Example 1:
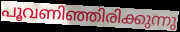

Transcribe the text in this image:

പൂവണിഞ്ഞിരിക്കുന്നു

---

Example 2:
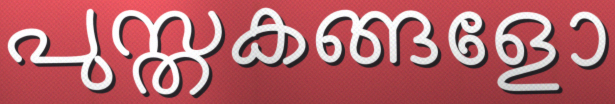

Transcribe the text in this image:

പുസ്തകങ്ങളോ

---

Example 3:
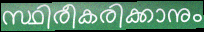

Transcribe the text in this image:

സ്ഥിരീകരിക്കാനും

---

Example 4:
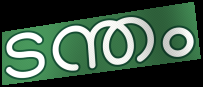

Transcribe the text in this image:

ടന്തം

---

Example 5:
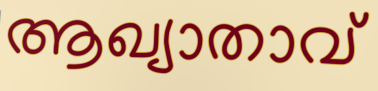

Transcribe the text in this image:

ആഖ്യാതാവ്